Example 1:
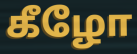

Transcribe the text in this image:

கீழோ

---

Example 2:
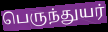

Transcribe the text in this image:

பெருந்துயர்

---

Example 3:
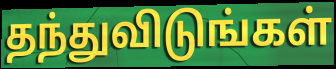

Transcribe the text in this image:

தந்துவிடுங்கள்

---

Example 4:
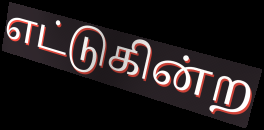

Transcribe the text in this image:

எட்டுகின்ற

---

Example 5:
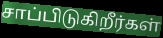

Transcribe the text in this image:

சாப்பிடுகிறீர்கள்